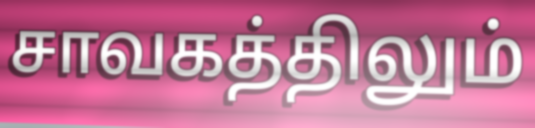
சாவகத்திலும்